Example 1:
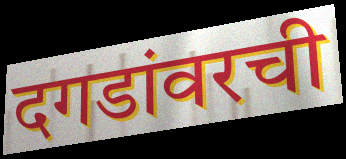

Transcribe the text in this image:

दगडांवरची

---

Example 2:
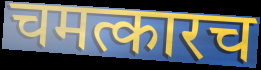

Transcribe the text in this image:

चमत्कारच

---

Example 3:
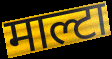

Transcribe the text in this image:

माल्टा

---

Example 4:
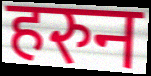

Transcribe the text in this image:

हरुन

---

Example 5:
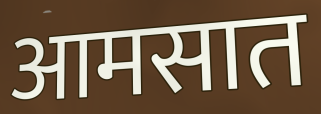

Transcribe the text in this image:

आमसात